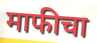
माफीचा